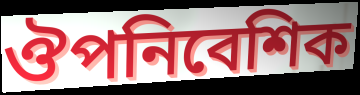
ঔপনিবেশিক